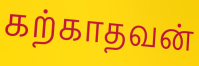
கற்காதவன்